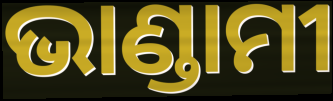
ଭାଣ୍ଡାମୀ